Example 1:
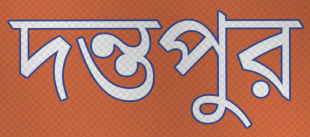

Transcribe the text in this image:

দন্তপুর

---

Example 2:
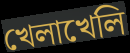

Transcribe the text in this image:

খেলাখেলি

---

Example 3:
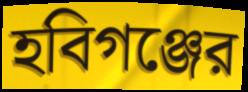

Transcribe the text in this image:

হবিগঞ্জের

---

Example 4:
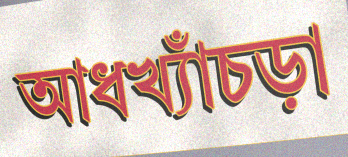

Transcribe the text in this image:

আধখ্যাঁচড়া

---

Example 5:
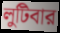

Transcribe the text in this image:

লুটিবার